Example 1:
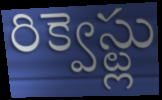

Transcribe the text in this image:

రిక్వెస్ట్లు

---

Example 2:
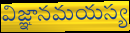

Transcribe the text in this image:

విజ్ఞానమయస్య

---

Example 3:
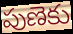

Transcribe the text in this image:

పుణెకు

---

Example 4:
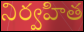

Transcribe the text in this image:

నిర్వహిత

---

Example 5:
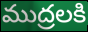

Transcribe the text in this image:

ముద్రలకి